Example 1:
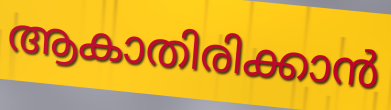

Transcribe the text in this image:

ആകാതിരിക്കാൻ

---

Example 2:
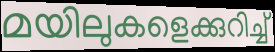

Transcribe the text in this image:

മയിലുകളെക്കുറിച്ച്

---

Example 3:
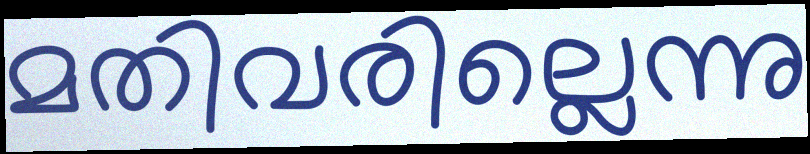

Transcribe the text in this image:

മതിവരില്ലെന്നു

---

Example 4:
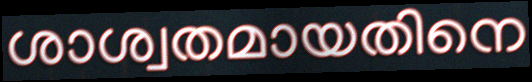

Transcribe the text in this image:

ശാശ്വതമായതിനെ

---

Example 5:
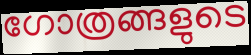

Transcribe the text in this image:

ഗോത്രങ്ങളുടെ